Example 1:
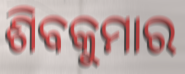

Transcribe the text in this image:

ଶିବକୁମାର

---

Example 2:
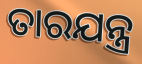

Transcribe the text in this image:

ତାରଯନ୍ତ୍ର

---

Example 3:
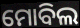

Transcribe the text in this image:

ମୋବିଲ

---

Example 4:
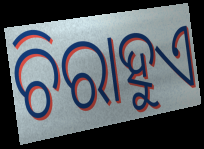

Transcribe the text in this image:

ଚିରାହୁଏ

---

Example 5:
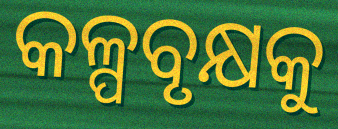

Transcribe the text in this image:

କଳ୍ପବୃକ୍ଷକୁ